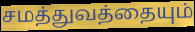
சமத்துவத்தையும்